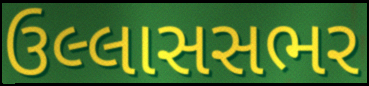
ઉલ્લાસસભર